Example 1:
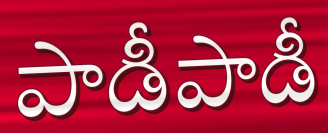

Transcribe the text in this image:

పాడీపాడీ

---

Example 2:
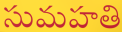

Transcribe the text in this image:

సుమహతి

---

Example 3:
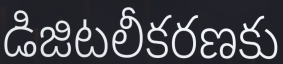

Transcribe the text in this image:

డిజిటలీకరణకు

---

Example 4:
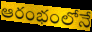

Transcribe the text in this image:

ఆరంభంలోనే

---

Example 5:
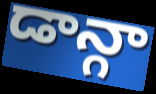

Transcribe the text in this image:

డాన్గా